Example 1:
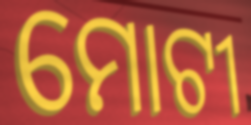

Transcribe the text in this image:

ମୋଟୀ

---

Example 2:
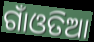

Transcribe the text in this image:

ଗାଁଓତିଆ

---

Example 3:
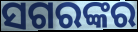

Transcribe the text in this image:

ସଗରଙ୍କର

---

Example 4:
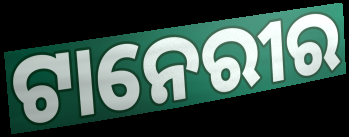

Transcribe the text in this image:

ଟାନେରୀର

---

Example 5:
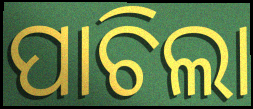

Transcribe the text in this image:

ପାଚିଲା